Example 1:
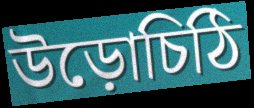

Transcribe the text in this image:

উড়োচিঠি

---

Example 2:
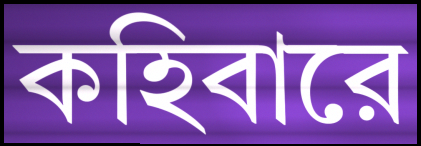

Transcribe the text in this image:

কহিবারে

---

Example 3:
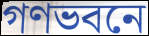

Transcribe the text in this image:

গণভবনে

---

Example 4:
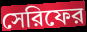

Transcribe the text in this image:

সেরিফের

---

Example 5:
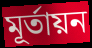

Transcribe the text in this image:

মূর্তায়ন